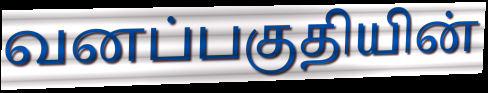
வனப்பகுதியின்